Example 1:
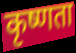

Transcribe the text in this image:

कृष्णता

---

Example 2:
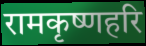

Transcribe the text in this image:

रामकृष्णहरि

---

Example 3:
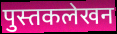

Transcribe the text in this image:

पुस्तकलेखन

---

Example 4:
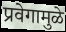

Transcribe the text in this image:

प्रवेगामुळे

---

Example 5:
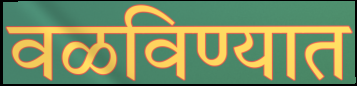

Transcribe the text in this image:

वळविण्यात